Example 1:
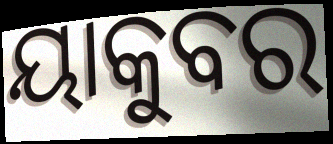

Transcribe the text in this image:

ୟାକୁବର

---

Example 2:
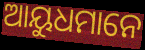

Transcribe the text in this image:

ଆୟୁଧମାନେ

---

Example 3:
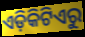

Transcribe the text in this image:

ଏଡ଼ିକିଟିଏରୁ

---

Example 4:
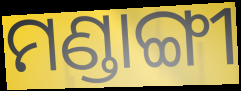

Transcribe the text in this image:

ମଣ୍ଡାଙ୍ଗୀ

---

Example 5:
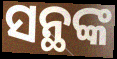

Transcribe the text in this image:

ସନ୍ଥଙ୍କ